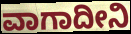
ವಾಗಾದೀನಿ